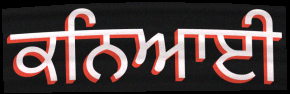
ਕਨਿਆਈ